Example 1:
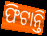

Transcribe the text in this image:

ଫିଟାନ୍ତି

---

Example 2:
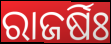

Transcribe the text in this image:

ରାଜର୍ଷିଃ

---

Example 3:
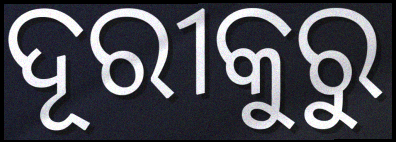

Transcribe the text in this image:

ଦୂରୀକୁରୁ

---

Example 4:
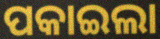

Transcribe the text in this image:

ପକାଇଲା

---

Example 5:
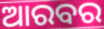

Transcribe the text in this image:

ଆରବର